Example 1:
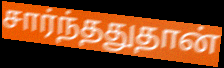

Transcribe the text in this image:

சார்ந்ததுதான்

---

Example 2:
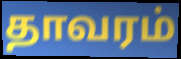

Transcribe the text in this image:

தாவரம்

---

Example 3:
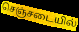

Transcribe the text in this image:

செஞ்சடையில்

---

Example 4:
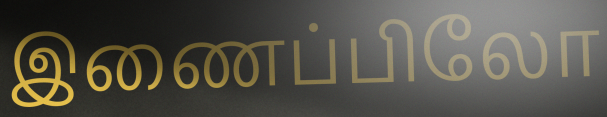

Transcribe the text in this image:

இணைப்பிலோ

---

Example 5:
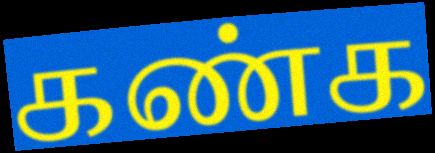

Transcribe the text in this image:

கண்க